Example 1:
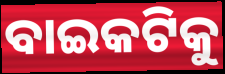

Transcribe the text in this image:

ବାଇକଟିକୁ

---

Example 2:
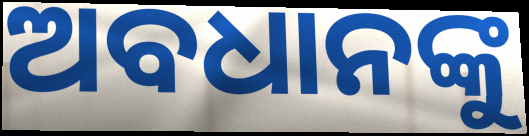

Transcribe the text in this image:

ଅବଧାନଙ୍କୁ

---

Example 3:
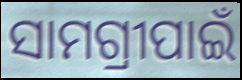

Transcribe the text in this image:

ସାମଗ୍ରୀପାଇଁ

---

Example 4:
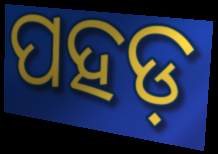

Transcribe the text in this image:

ପହଡ଼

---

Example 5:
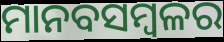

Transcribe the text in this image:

ମାନବସମ୍ବଳର